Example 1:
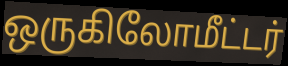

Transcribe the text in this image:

ஒருகிலோமீட்டர்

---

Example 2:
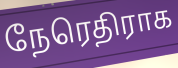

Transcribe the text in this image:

நேரெதிராக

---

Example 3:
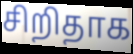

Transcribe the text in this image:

சிறிதாக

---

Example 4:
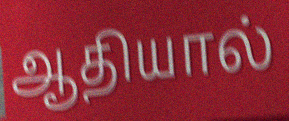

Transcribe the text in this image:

ஆதியால்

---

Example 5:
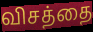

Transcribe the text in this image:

விசத்தை